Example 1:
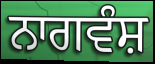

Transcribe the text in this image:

ਨਾਗਵੰਸ਼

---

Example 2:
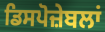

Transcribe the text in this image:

ਡਿਸਪੋਜ਼ੇਬਲਾਂ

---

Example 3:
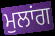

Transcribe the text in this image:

ਮੁਲਾਂਗ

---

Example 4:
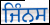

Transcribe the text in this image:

ਜਿੰਨਸ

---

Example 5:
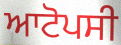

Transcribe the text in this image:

ਆਟੋਪਸੀ